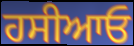
ਹਸੀਆਓ